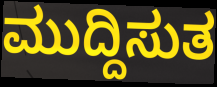
ಮುದ್ದಿಸುತ